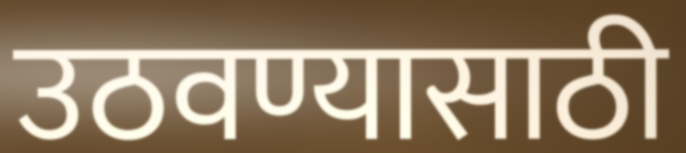
उठवण्यासाठी